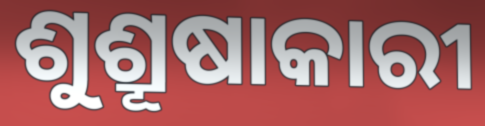
ଶୁଶ୍ରୂଷାକାରୀ